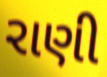
રાણી